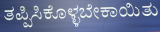
ತಪ್ಪಿಸಿಕೊಳ್ಳಬೇಕಾಯಿತು